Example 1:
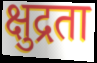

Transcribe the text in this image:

क्षुद्रता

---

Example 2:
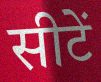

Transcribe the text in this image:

सीटें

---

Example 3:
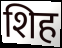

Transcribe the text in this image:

शिह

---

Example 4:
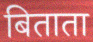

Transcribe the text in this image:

बिताता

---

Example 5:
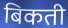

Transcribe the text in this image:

बिकती